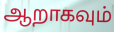
ஆறாகவும்